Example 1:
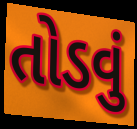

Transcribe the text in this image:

તોડવું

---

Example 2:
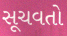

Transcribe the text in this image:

સૂચવતો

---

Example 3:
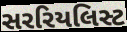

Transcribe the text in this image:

સરરિયલિસ્ટ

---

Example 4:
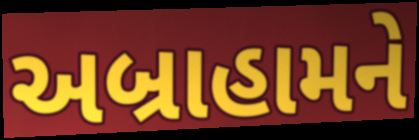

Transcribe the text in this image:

અબ્રાહામને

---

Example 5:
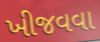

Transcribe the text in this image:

ખીજવવા